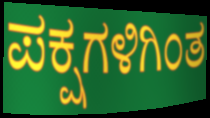
ಪಕ್ಷಗಳಿಗಿಂತ